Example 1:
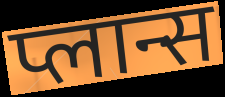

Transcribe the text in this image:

प्‍लान्‍स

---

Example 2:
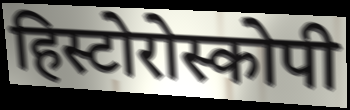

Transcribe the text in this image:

हिस्टोरोस्कोपी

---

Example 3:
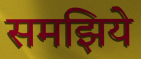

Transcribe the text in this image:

समझिये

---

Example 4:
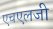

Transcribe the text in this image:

एचएलजी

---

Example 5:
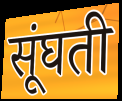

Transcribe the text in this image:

सूंघती